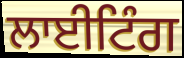
ਲਾਈਟਿੰਗ